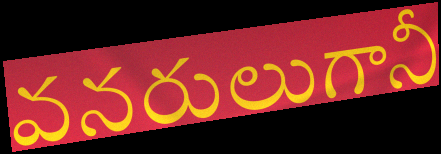
వనరులుగానీ